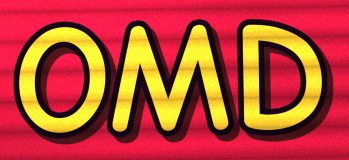
OMD